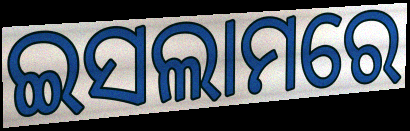
ଇସଲାମରେ